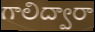
గాలిద్వారా